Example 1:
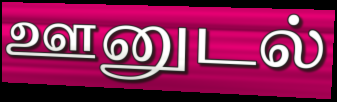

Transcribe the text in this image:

ஊனுடல்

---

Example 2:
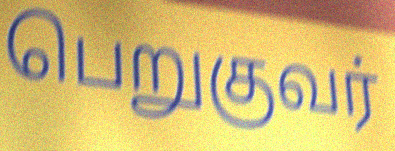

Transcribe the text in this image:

பெறுகுவர்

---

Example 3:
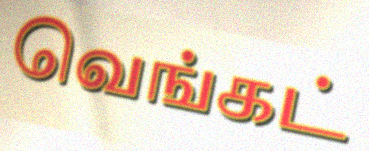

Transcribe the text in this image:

வெங்கட்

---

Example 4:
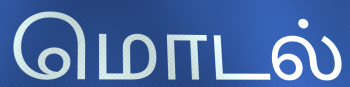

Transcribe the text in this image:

மொடல்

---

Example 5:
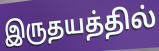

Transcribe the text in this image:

இருதயத்தில்